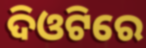
ଦିଓଟିରେ